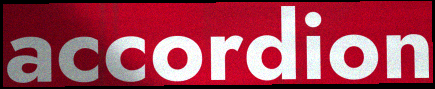
accordion